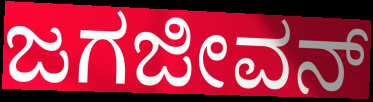
ಜಗಜೀವನ್